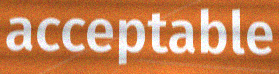
acceptable